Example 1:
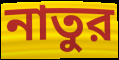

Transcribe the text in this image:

নাতুর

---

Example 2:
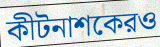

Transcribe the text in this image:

কীটনাশকেরও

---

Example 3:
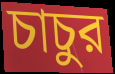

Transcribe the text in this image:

চাচুর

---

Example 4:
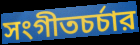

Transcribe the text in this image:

সংগীতচর্চার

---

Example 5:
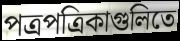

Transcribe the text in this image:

পত্রপত্রিকাগুলিতে